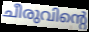
ചീരുവിന്റെ